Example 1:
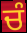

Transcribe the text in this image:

ਚੰ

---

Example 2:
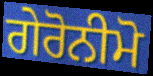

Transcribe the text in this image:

ਗੇਰੋਨੀਮੋ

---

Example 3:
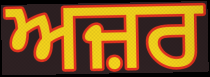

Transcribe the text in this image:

ਅਜ਼ਰ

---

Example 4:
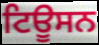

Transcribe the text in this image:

ਟਿਊਸਨ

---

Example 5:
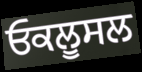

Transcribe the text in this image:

ਓਕਲੂਸਲ